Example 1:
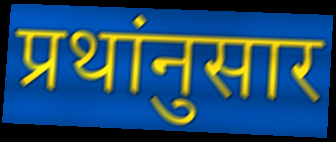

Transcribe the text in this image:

प्रथांनुसार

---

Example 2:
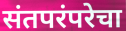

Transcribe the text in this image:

संतपरंपरेचा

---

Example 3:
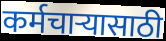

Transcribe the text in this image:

कर्मचाऱ्यासाठी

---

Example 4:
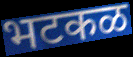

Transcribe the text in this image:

भटकळ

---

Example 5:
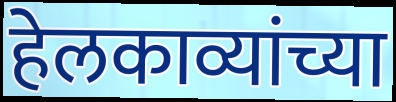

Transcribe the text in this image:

हेलकाव्यांच्या